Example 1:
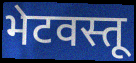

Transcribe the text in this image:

भेटवस्तू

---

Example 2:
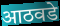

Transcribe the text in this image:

आठवडे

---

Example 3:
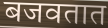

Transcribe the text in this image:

बजवतात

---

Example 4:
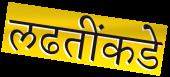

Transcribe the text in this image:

लढतींकडे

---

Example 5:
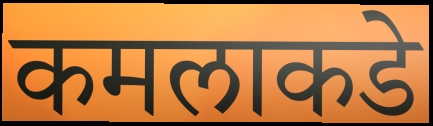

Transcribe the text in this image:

कमलाकडे